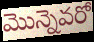
మొన్నెవరో